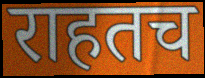
राहतच